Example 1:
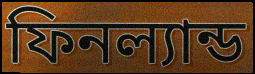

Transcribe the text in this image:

ফিনল্যান্ড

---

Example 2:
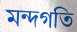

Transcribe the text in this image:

মন্দগতি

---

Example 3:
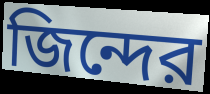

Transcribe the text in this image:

জিন্দের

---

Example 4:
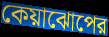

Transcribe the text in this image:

কেয়াঝোপের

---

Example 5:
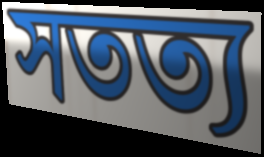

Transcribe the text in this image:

সতত্য